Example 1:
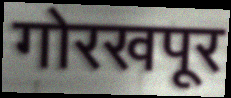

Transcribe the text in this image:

गोरखपूर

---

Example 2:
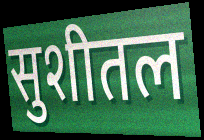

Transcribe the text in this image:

सुशीतल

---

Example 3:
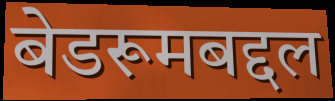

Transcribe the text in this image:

बेडरूमबद्दल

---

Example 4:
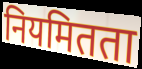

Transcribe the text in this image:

नियमितता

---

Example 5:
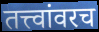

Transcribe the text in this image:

तत्त्वांवरच